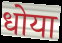
धोया